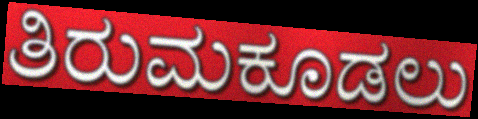
ತಿರುಮಕೂಡಲು